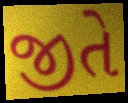
જીતે